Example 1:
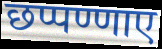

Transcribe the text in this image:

छप्पण्णाए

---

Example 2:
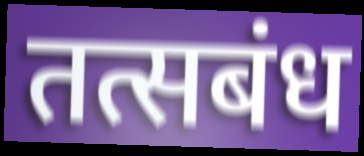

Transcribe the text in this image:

तत्सबंध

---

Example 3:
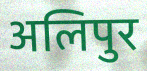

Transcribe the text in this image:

अलिपुर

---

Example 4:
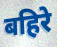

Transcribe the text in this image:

बहिरे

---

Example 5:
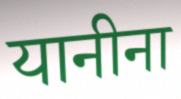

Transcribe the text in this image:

यानीना